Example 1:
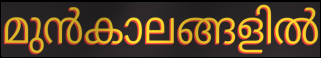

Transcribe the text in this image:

മുൻകാലങ്ങളിൽ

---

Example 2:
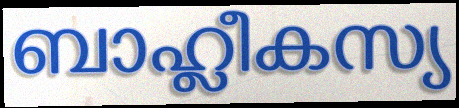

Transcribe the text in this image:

ബാഹ്ലീകസ്യ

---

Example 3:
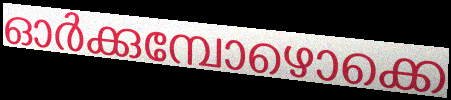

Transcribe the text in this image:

ഓർക്കുമ്പോഴൊക്കെ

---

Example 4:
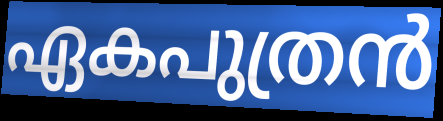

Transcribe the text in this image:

ഏകപുത്രൻ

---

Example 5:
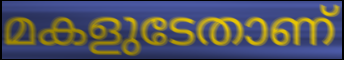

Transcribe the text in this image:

മകളുടേതാണ്